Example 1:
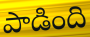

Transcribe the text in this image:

పాడింది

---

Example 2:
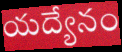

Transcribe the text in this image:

యద్యేనం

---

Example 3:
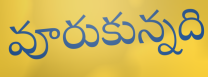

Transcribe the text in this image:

వూరుకున్నది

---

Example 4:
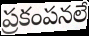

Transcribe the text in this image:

ప్రకంపనలే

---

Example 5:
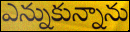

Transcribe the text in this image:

ఎన్నుకున్నాను